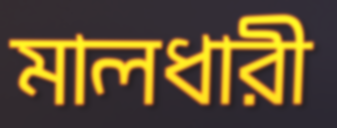
মালধারী